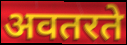
अवतरते